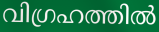
വിഗ്രഹത്തിൽ